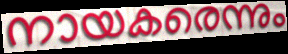
നായകരെന്നും